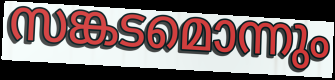
സങ്കടമൊന്നും